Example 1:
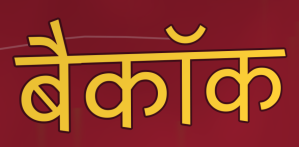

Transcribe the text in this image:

बैकॉक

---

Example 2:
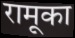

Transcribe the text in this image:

रामूका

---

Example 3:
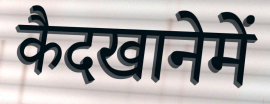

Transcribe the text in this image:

कैदखानेमें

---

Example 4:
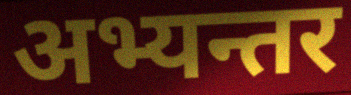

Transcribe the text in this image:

अभ्यन्तर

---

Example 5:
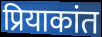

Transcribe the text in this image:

प्रियाकांत